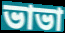
ভাভা